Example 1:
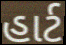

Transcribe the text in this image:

હાર્ટ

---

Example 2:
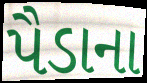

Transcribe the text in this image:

પૈડાના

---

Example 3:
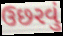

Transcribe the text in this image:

ઉછરવું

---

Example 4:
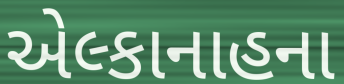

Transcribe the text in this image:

એલ્કાનાહના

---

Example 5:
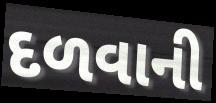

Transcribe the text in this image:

દળવાની